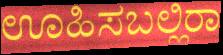
ಊಹಿಸಬಲ್ಲಿರಾ